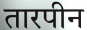
तारपीन